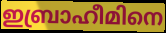
ഇബ്രാഹീമിനെ